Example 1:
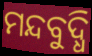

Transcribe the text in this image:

ମନ୍ଦବୁଦ୍ଧି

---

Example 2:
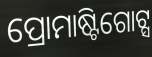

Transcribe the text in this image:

ପ୍ରୋମାଷ୍ଟିଗୋଟ୍ସ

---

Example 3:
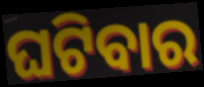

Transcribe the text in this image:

ଘଟିବାର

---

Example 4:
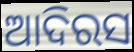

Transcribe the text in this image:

ଆଦିରସ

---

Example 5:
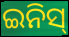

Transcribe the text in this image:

ଇନିସ୍